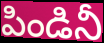
పిండినీ